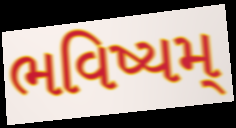
ભવિષ્યમ્